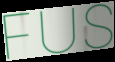
FUS